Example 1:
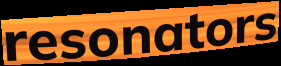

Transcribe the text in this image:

resonators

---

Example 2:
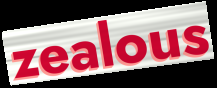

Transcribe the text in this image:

zealous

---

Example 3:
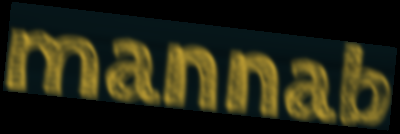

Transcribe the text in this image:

mannab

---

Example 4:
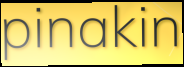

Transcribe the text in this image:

pinakin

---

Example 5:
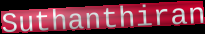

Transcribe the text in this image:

Suthanthiran